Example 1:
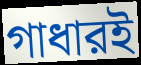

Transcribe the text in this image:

গাধারই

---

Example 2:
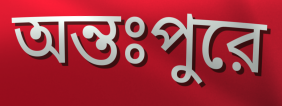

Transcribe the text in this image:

অন্তঃপুরে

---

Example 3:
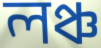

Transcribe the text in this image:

লঞ্চ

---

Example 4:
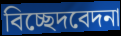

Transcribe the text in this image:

বিচ্ছেদবেদনা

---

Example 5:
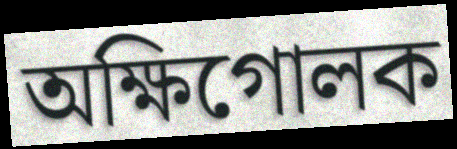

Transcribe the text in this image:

অক্ষিগোলক